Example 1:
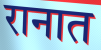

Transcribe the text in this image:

रानात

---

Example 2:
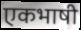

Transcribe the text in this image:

एकभाषी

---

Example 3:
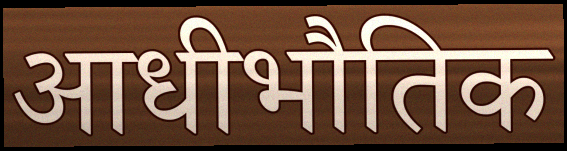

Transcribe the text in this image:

आधीभौतिक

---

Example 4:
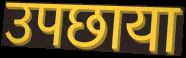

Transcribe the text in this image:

उपछाया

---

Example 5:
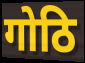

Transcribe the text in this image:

गोठि